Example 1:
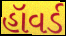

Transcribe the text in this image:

હૉવર્ડ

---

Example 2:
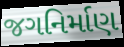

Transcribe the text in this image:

જગનિર્માણ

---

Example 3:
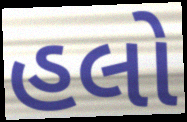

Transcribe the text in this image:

હલો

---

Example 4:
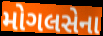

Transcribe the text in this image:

મોગલસેના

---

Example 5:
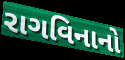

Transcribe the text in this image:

રાગવિનાનો